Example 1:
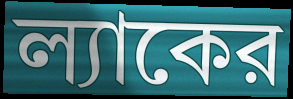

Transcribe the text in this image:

ল্যাকের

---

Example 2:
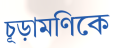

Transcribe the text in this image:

চূড়ামণিকে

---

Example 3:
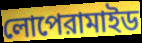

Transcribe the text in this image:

লোপেরামাইড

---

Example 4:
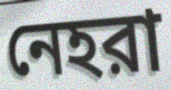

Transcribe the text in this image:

নেহরা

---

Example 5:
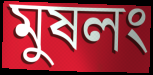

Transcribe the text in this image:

মুষলং